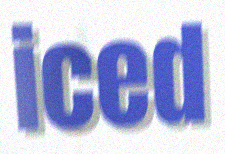
iced